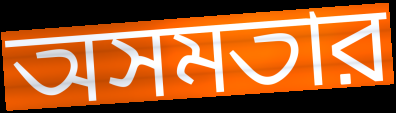
অসমতার